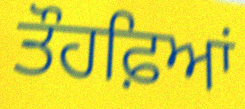
ਤੌਹਫ਼ਿਆਂ